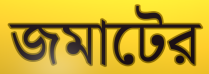
জমাটের